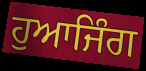
ਹੁਆਜਿੰਗ